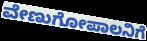
ವೇಣುಗೋಪಾಲನಿಗೆ